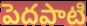
పెదపాటి